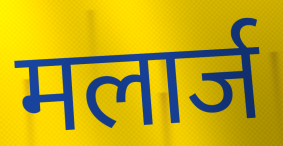
मलार्ज